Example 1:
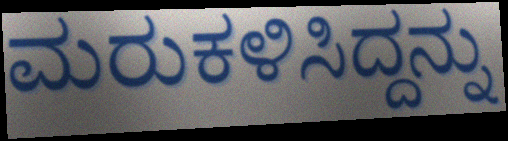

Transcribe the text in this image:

ಮರುಕಳಿಸಿದ್ದನ್ನು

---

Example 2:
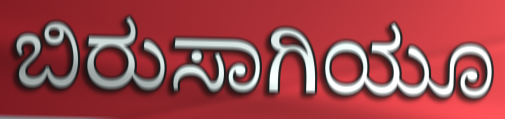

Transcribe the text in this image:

ಬಿರುಸಾಗಿಯೂ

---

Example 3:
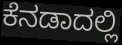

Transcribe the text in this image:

ಕೆನಡಾದಲ್ಲಿ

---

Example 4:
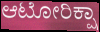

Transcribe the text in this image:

ಆಟೋರಿಕ್ಷಾ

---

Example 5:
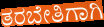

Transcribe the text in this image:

ತರಬೇತಿಗಾಗಿ